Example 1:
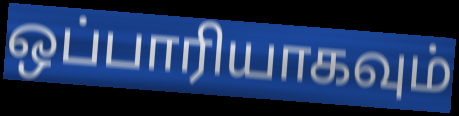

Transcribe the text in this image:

ஒப்பாரியாகவும்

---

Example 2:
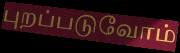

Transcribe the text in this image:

புறப்படுவோம்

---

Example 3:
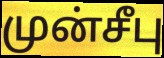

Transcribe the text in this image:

முன்சீபு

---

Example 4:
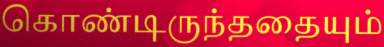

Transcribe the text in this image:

கொண்டிருந்ததையும்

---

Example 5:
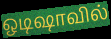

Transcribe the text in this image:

ஒடிஷாவில்